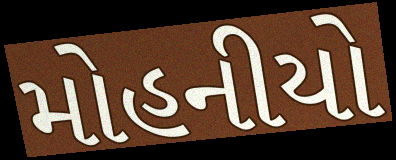
મોહનીયો